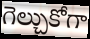
గెల్చుకోగా